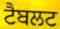
ਟੈਬਲਟ